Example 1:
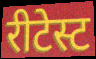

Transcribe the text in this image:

रीटेस्ट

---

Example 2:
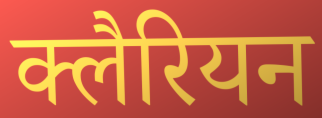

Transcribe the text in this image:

क्लैरियन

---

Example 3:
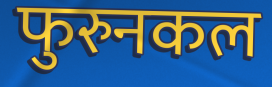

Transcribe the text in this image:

फुरुनकल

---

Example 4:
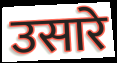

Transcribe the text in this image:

उसारे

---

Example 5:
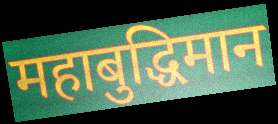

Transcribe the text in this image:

महाबुद्धिमान